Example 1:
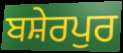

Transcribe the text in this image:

ਬਸ਼ੇਰਪੁਰ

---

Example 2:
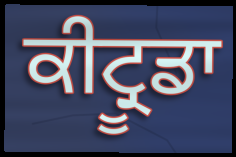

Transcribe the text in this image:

ਕੀਟ੍ਰੂਡਾ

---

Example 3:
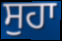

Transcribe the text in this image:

ਸੁਹਾ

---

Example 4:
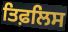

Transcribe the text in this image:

ਤਿਫ਼ਲਿਸ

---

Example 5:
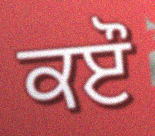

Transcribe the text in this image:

ਕੲੌ